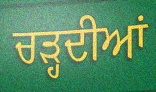
ਚੜ੍ਹਦੀਆਂ